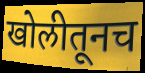
खोलीतूनच